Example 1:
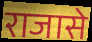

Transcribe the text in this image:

राजासे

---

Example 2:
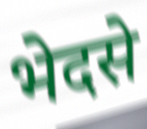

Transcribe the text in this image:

भेदसे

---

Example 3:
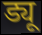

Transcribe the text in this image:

ड्यू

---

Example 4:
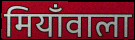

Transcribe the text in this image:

मियाँवाला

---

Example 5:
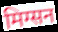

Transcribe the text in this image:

मिग्सन